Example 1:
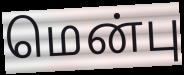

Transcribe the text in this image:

மென்பு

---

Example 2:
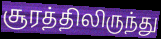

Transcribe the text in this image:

சூரத்திலிருந்து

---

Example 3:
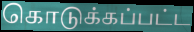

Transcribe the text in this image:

கொடுக்கப்பட்ட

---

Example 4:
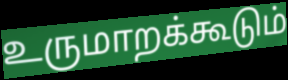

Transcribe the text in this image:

உருமாறக்கூடும்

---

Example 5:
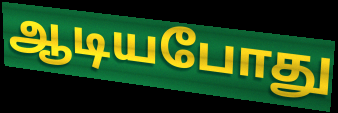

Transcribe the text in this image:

ஆடியபோது